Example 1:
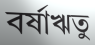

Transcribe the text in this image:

বর্ষাঋতু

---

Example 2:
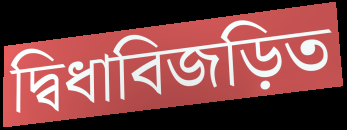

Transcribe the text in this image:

দ্বিধাবিজড়িত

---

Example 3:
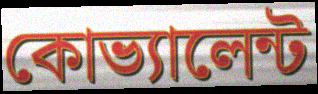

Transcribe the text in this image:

কোভ্যালেন্ট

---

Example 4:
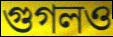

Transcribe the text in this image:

গুগলও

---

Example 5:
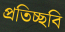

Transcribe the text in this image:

প্রতিচ্ছবি